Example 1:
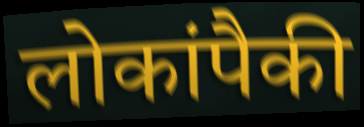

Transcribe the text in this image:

लोकांपैकी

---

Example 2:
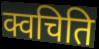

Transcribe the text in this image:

क्वचिति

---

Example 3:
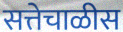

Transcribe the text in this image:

सत्तेचाळीस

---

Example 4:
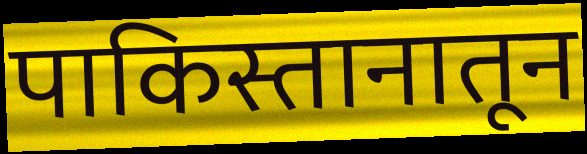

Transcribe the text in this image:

पाकिस्तानातून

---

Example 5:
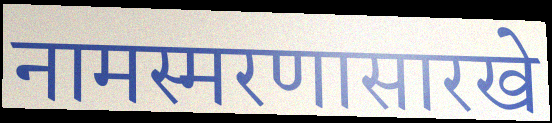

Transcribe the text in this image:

नामस्मरणासारखे